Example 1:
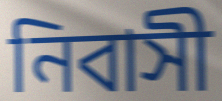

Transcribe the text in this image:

নিবাসী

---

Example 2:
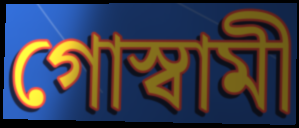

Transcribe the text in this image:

গোস্বামী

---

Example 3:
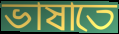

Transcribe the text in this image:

ভাষাতে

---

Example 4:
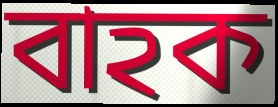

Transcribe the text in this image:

বাহক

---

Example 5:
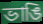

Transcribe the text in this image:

ভাঙি